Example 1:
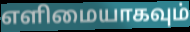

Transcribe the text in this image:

எளிமையாகவும்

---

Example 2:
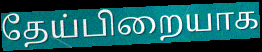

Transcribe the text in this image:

தேய்பிறையாக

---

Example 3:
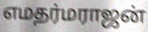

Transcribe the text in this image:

எமதர்மராஜன்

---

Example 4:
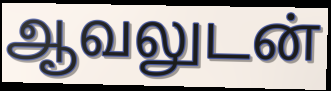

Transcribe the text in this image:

ஆவலுடன்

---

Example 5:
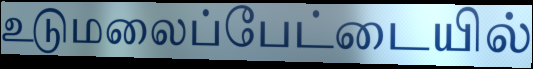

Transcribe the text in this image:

உடுமலைப்பேட்டையில்